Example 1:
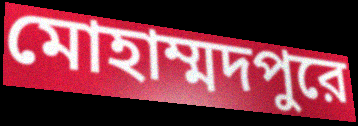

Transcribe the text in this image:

মোহাম্মদপুরে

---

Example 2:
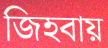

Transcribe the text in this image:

জিহবায়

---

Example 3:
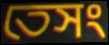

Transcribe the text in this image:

তেসং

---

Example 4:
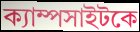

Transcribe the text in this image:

ক্যাম্পসাইটকে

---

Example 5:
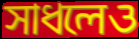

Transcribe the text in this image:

সাধলেও